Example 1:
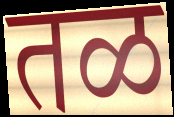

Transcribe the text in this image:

तळ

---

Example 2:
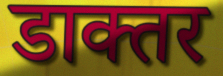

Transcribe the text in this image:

डाक्तर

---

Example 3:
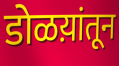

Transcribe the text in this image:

डोळय़ांतून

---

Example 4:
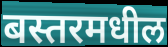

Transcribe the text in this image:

बस्तरमधील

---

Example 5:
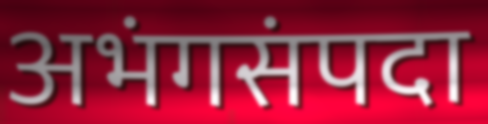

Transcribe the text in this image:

अभंगसंपदा